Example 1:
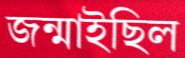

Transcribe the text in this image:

জন্মাইছিল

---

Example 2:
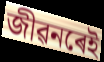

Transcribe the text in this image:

জীৱনৰেই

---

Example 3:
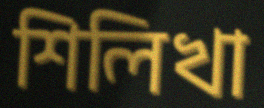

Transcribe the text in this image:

শিলিখা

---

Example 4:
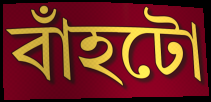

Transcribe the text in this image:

বাঁহটো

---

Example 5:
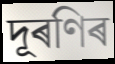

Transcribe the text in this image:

দূৰণিৰ